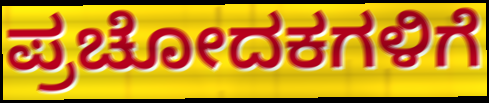
ಪ್ರಚೋದಕಗಳಿಗೆ